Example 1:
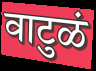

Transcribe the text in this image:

वाटुळं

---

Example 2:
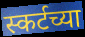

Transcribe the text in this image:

स्कर्टच्या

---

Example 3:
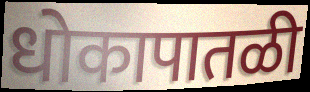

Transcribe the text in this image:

धोकापातळी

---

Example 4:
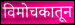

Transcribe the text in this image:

विमोचकातून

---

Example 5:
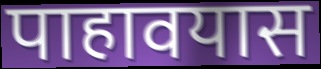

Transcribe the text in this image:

पाहावयास